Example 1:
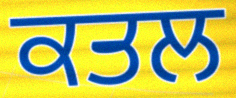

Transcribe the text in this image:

ਕਤਲ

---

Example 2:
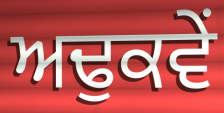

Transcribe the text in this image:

ਅਢੁਕਵੇਂ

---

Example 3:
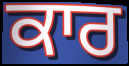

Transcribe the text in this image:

ਕਾਰ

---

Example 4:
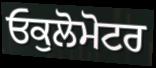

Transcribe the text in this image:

ਓਕੁਲੋਮੋਟਰ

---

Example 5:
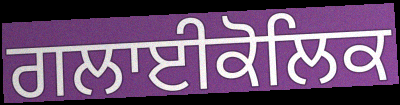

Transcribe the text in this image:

ਗਲਾਈਕੋਲਿਕ